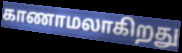
காணாமலாகிறது